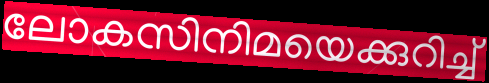
ലോകസിനിമയെക്കുറിച്ച്